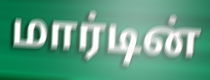
மார்டின்